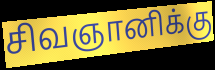
சிவஞானிக்கு